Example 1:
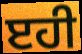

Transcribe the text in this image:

ੲਹੀ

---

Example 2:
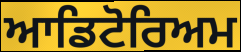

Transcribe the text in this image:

ਆਡਿਟੋਰਿਅਮ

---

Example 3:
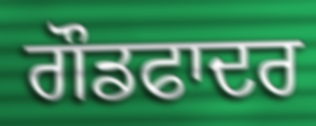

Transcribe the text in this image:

ਗੌਡਫਾਦਰ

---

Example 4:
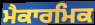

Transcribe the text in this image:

ਮੈਕਾਰਮਿਕ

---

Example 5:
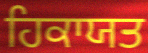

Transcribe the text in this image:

ਹਿਕਾਯਤ